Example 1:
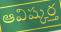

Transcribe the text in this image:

ఆవిష్కర్త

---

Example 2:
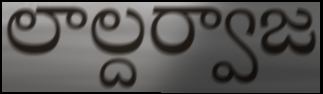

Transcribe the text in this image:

లాల్దర్వాజ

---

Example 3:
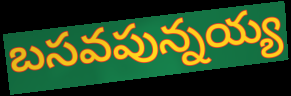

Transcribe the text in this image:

బసవపున్నయ్య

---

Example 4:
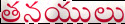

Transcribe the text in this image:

తనయులు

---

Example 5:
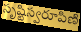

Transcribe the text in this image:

సృష్టిస్వరూపిణి